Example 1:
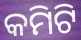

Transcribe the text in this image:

କମିଟି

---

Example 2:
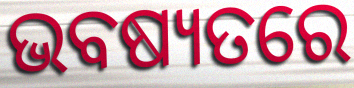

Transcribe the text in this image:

ଭବଷ୍ୟତରେ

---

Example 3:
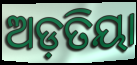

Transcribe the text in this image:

ଅଡ଼ତିୟା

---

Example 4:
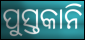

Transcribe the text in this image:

ପୁସ୍ତକାନି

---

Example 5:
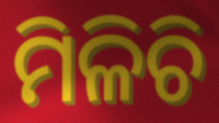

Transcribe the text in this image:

ମିଳିଚି